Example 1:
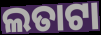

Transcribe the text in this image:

ଲତାଟା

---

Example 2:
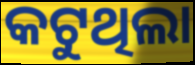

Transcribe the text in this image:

କଟୁଥିଲା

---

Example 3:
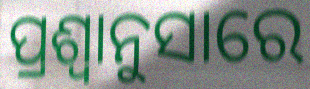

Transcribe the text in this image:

ପ୍ରଶ୍ବାନୁସାରେ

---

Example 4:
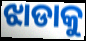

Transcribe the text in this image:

ଝାଡାକୁ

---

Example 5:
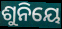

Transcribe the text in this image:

ଶୁନିୟେ